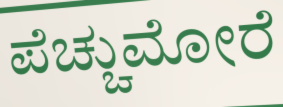
ಪೆಚ್ಚುಮೋರೆ